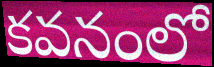
కవనంలో